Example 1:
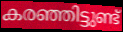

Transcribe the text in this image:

കരഞ്ഞിട്ടുണ്ട്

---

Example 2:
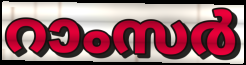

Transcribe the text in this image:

റാംസർ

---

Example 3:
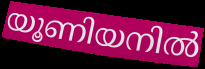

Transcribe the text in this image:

യൂണിയനിൽ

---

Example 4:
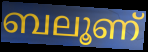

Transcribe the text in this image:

ബലൂണ്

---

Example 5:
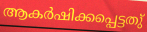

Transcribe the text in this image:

ആകർഷിക്കപ്പെട്ടതു്